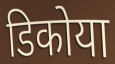
डिकोया